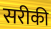
सरीकी